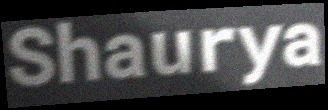
Shaurya